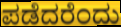
ಪಡೆದರೆಂದು